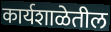
कार्यशाळेतील